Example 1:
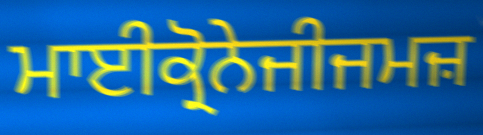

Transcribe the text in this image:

ਮਾਈਕ੍ਰੋਨੇਜੀਜਮਜ਼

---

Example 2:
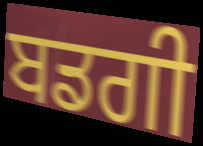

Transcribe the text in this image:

ਬਡਗੀ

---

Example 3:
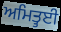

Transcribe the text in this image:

ਅਮਿਤ੍ਤਈ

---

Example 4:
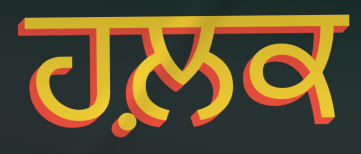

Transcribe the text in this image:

ਹਲ਼ਕ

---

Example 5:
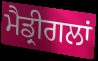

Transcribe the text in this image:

ਮੈਡ੍ਰੀਗਲਾਂ